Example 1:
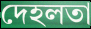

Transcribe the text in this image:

দেহলতা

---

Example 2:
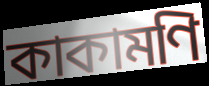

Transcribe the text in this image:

কাকামণি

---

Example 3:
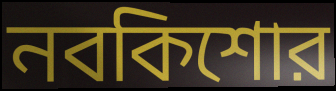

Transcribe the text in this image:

নবকিশোর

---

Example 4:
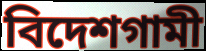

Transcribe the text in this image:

বিদেশগামী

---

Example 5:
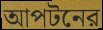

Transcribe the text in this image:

আপটনের